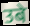
उबे